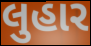
લુહાર